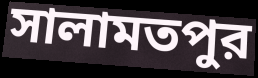
সালামতপুর